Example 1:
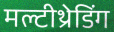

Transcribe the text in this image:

मल्टीथ्रेडिंग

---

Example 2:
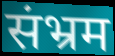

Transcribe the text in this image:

संभ्रम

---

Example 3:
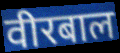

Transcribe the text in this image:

वीरबाल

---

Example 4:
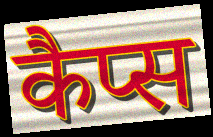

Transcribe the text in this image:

कैप्स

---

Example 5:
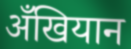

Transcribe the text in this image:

अँखियान